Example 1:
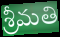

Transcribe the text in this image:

శ్రీమతి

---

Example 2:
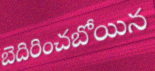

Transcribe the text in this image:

బెదిరించబోయిన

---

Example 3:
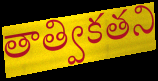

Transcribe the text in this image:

తాత్వికతని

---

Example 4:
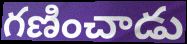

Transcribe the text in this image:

గణించాడు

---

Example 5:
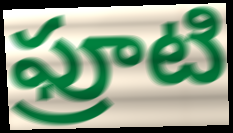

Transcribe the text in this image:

ఫ్రూటి